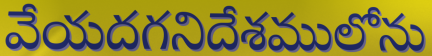
వేయదగనిదేశములోను